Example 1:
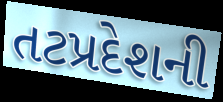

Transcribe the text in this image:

તટપ્રદેશની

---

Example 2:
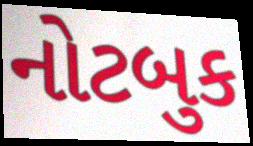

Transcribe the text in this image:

નોટબુક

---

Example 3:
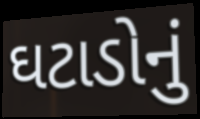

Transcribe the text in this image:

ઘટાડોનું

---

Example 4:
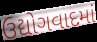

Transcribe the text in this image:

ઉદ્યોગવાદમાં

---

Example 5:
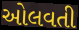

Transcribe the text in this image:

ઓલવતી